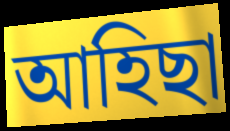
আহিছা